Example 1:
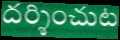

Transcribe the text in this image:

దర్శించుట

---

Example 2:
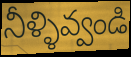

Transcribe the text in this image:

నీళ్ళివ్వండి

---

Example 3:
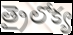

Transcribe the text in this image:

త్రైలోక్య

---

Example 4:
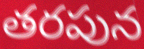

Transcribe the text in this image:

తరపున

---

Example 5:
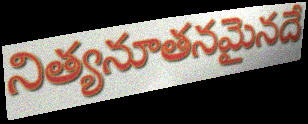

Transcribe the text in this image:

నిత్యనూతనమైనదే